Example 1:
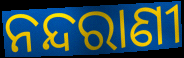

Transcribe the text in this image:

ନନ୍ଦରାଣୀ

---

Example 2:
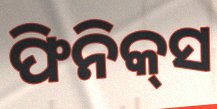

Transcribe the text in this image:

ଫିନିକ୍‌ସ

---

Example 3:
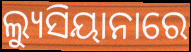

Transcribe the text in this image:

ଲ୍ୟୁସିୟାନାରେ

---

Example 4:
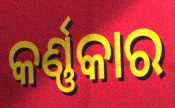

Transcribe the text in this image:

କର୍ଣ୍ଣକାର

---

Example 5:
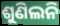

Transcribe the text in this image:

ଶୁଣିଲନି